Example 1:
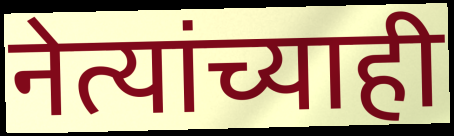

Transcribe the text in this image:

नेत्यांच्याही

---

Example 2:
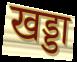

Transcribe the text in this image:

खड्डा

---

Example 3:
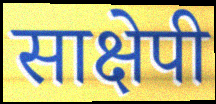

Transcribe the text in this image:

साक्षेपी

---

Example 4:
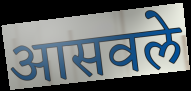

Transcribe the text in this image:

आसवले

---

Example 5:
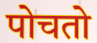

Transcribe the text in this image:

पोचतो